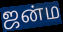
ஜன்ம